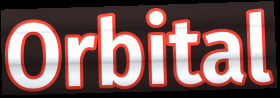
Orbital